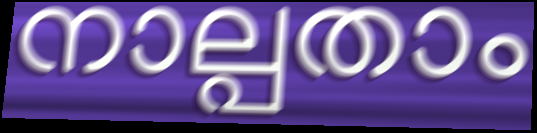
നാല്പതാം